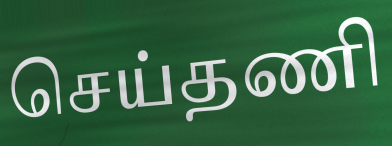
செய்தணி